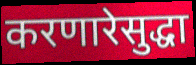
करणारेसुद्धा